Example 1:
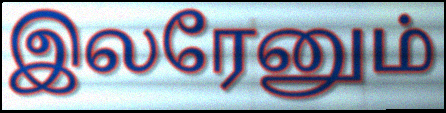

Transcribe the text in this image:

இலரேனும்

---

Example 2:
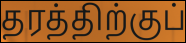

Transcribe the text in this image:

தரத்திற்குப்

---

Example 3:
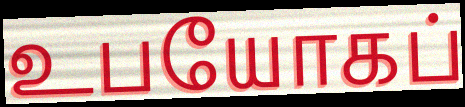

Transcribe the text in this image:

உபயோகப்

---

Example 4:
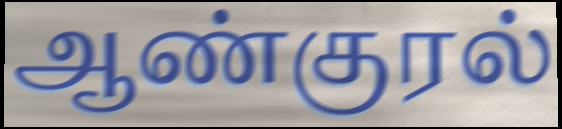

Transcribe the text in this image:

ஆண்குரல்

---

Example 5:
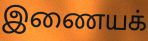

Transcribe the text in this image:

இணையக்